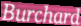
Burchard